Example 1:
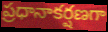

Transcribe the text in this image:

ప్రధానాకర్షణగా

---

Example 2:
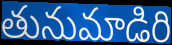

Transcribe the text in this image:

తునుమాడిరి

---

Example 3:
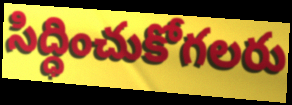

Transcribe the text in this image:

సిద్ధించుకోగలరు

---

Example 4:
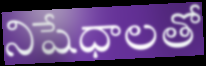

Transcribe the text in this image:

నిషేధాలతో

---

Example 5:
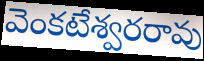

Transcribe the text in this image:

వెంకటేశ్వరరావు